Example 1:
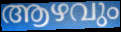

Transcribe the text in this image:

ആഴവും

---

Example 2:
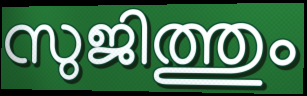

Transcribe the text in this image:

സുജിത്തും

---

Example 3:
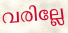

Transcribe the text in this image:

വരില്ലേ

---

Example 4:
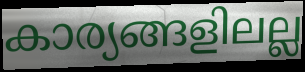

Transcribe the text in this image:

കാര്യങ്ങളിലല്ല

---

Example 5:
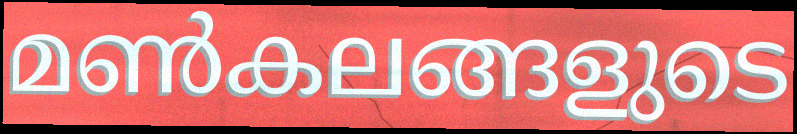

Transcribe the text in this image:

മൺകലങ്ങളുടെ